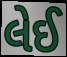
લેઈ